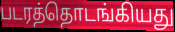
படரத்தொடங்கியது